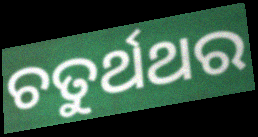
ଚତୁର୍ଥଥର